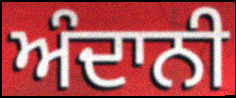
ਅੰਦਾਨੀ